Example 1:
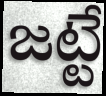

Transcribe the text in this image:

జట్టే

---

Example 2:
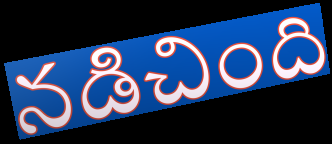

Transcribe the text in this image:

నడిచింది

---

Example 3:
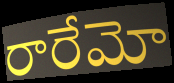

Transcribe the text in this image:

రారేమో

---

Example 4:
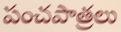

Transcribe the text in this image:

పంచపాత్రలు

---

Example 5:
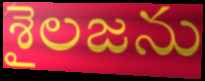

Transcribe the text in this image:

శైలజను